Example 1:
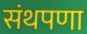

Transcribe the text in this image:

संथपणा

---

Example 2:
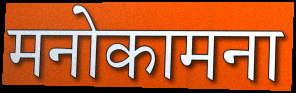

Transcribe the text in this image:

मनोकामना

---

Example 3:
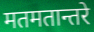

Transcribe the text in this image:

मतमतान्तरे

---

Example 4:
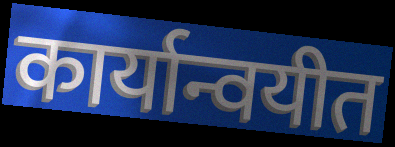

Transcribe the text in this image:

कार्यान्वयीत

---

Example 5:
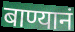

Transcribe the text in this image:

बाण्यानं